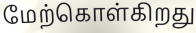
மேற்கொள்கிறது